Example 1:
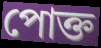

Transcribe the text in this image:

পোক্ত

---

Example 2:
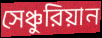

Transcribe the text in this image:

সেঞ্চুরিয়ান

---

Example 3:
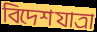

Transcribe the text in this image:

বিদেশযাত্রা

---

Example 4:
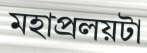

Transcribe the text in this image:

মহাপ্রলয়টা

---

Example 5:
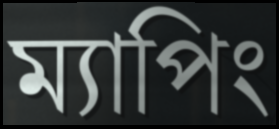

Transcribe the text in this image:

ম্যাপিং